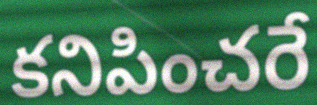
కనిపించరే